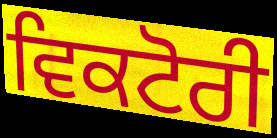
ਵਿਕਟੋਰੀ